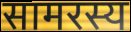
सामरस्य